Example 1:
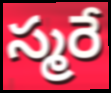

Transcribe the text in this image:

స్మరే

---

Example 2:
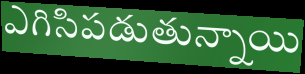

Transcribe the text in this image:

ఎగిసిపడుతున్నాయి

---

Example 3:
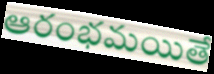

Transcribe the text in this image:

ఆరంభమయితే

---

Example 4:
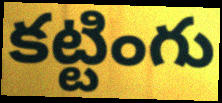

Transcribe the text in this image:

కట్టింగు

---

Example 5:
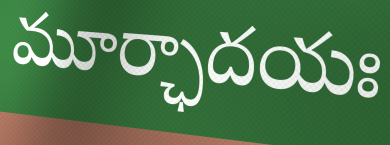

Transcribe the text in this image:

మూర్ఛాదయః